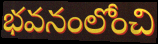
భవనంలోంచి